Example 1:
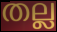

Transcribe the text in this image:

തല്ല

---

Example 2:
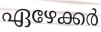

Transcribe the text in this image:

ഏഴേക്കർ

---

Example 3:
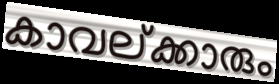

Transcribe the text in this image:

കാവല്ക്കാരും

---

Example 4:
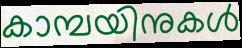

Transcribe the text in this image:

കാമ്പയിനുകൾ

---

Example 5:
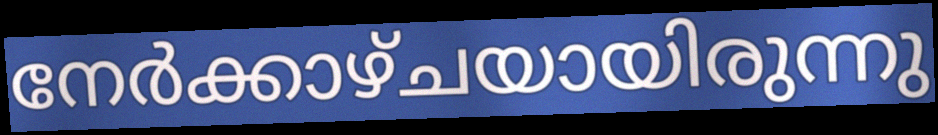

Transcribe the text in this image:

നേർക്കാഴ്ചയായിരുന്നു